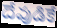
దేవుడికే